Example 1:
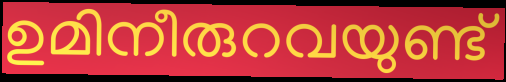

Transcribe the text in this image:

ഉമിനീരുറവയുണ്ട്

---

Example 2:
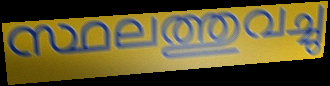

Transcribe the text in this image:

സ്ഥലത്തുവച്ചു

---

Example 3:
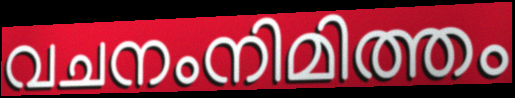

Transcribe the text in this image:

വചനംനിമിത്തം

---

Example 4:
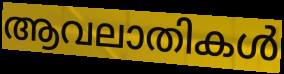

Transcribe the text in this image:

ആവലാതികൾ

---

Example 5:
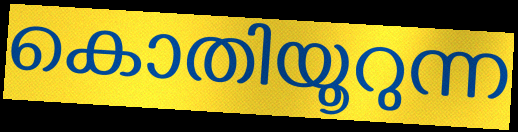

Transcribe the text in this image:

കൊതിയൂറുന്ന